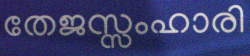
തേജസ്സംഹാരി